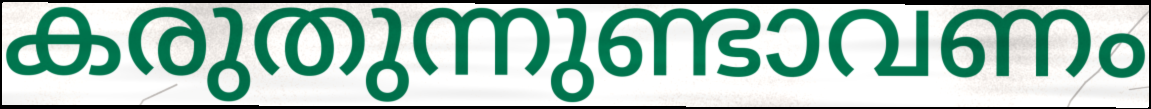
കരുതുന്നുണ്ടാവണം